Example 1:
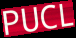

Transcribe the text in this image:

PUCL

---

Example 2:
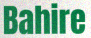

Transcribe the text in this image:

Bahire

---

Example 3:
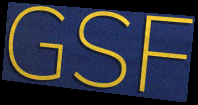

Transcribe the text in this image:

GSF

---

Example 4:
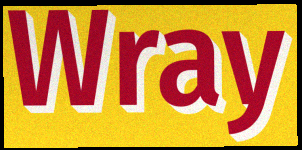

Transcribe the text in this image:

Wray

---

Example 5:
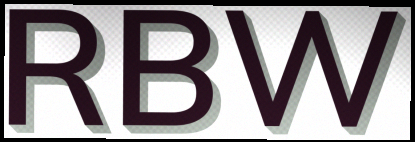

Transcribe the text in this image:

RBW